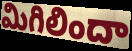
మిగిలిందా